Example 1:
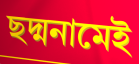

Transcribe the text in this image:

ছদ্মনামেই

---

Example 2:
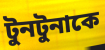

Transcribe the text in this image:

টুনটুনাকে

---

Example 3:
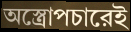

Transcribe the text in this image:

অস্ত্রোপচারেই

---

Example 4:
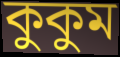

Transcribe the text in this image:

কুকুম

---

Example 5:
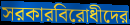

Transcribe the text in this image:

সরকারবিরোধীদের